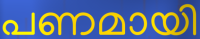
പണമായി